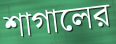
শাগালের